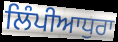
ਲਿੰਪੀਆਧੁਰਾ